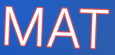
MAT